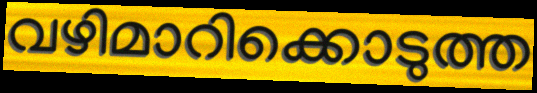
വഴിമാറിക്കൊടുത്ത